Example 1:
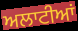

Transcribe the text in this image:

ਅਲਾਟੀਆਂ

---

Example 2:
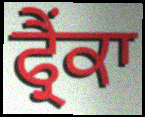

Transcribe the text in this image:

ਫ੍ਰੈਂਕਾ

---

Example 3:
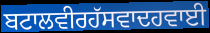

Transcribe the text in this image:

ਬਟਾਲਵੀਰਹੱਸਵਾਦਹਵਾਈ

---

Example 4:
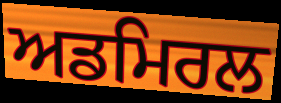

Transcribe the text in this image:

ਅਡਮਿਰਲ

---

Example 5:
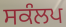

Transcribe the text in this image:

ਸਕੰਲਪ